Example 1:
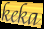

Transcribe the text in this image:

keka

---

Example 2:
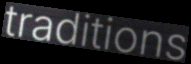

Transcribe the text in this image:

traditions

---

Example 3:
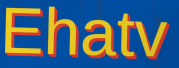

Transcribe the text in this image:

Ehatv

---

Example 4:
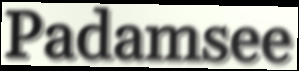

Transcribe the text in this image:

Padamsee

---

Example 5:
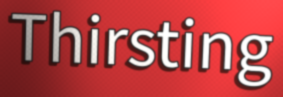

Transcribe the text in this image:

Thirsting